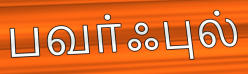
பவர்ஃபுல்